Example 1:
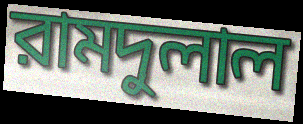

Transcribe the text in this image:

রামদুলাল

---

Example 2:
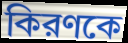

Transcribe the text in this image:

কিরণকে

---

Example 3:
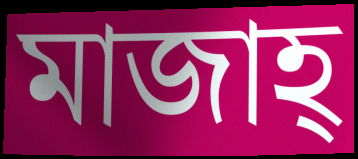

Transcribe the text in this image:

মাজাহ্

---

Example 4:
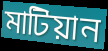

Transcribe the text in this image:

মাটিয়ান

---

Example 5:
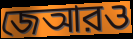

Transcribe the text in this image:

জেআরও